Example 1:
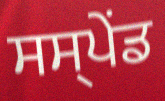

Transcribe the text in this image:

ਸਸ੍ਪੇੰਡ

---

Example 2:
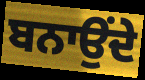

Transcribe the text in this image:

ਬਨਾਉਂਦੇ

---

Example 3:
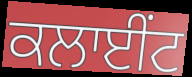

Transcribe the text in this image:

ਕਲਾਈਂਟ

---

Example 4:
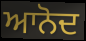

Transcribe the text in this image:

ਆਨੋਦ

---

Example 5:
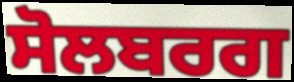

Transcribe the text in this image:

ਸੋਲਬਰਗ